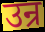
उन्र